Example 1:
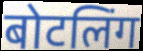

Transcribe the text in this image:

बोटलिंग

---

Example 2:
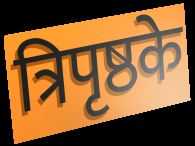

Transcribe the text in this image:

त्रिपृष्ठके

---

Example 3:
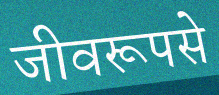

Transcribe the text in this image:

जीवरूपसे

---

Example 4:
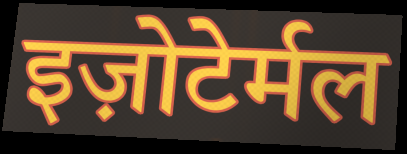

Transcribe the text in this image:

इज़ोटेर्मल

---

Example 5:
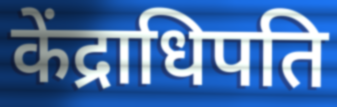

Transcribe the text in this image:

केंद्राधिपति